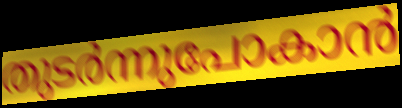
തുടർന്നുപോകാൻ